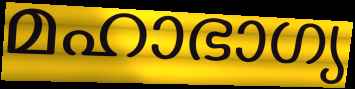
മഹാഭാഗ്യ